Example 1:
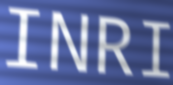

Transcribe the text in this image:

INRI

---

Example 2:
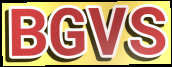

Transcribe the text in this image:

BGVS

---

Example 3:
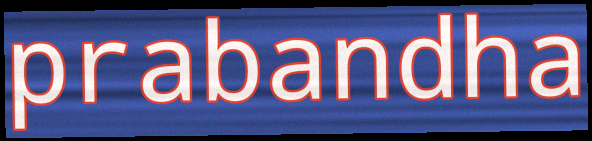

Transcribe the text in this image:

prabandha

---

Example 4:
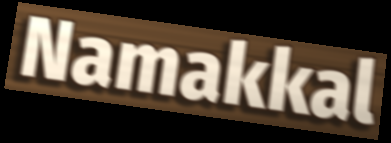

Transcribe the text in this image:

Namakkal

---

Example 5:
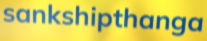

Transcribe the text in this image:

sankshipthanga